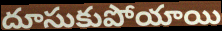
దూసుకుపోయాయి